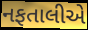
નફતાલીએ